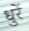
धुरें